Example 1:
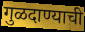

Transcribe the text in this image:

गुळदाण्याची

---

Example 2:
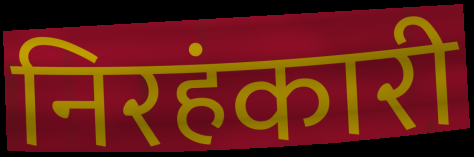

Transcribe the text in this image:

निरहंकारी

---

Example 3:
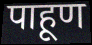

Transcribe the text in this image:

पाहूण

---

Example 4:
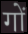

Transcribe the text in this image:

गों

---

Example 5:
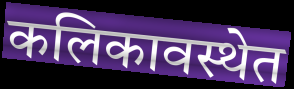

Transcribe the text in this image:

कलिकावस्थेत